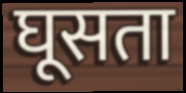
घूसता